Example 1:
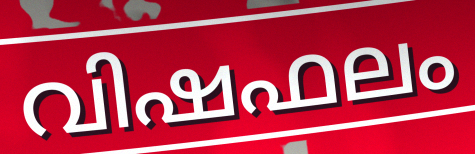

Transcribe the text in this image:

വിഷഫലം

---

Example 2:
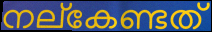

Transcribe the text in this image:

നല്കേണ്ടത്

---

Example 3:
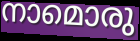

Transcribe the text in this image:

നാമൊരു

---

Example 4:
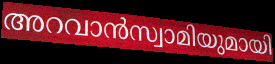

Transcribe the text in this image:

അറവാൻസ്വാമിയുമായി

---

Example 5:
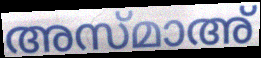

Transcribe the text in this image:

അസ്മാഅ്